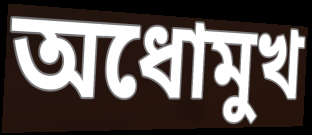
অধোমুখ